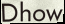
Dhow